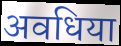
अवधिया